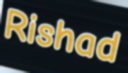
Rishad